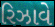
રિઝાવે